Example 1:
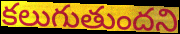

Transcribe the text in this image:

కలుగుతుందని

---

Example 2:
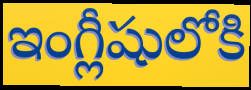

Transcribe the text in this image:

ఇంగ్లీషులోకి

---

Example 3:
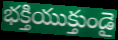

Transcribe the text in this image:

భక్తియుక్తుండై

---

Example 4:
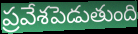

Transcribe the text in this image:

ప్రవేశపెడుతుంది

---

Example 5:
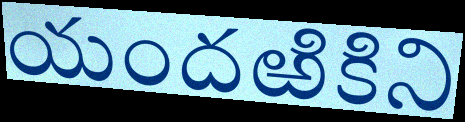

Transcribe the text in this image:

యందఱికిని